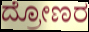
ದ್ರೋಣರ